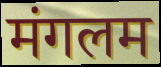
मंगलम